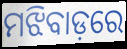
ମଝିବାଡ଼ରେ